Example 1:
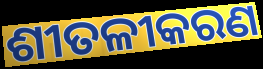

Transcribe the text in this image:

ଶୀତଳୀକରଣ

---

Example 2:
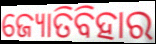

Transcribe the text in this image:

ଜ୍ୟୋତିବିହାର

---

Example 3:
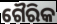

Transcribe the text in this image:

ଗୈରିକ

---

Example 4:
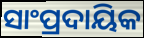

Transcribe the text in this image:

ସାଂପ୍ରଦାୟିକ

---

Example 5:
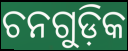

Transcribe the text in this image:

ଚନଗୁଡ଼ିକ